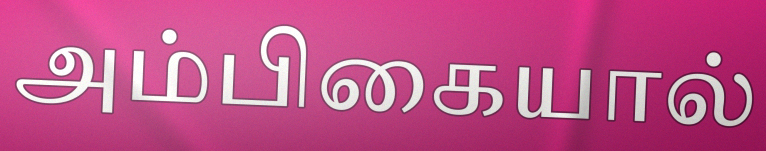
அம்பிகையால்